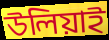
উলিয়াই